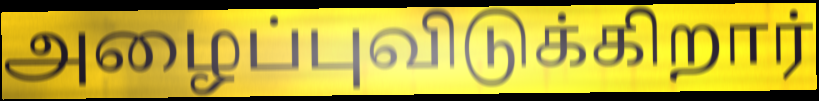
அழைப்புவிடுக்கிறார்